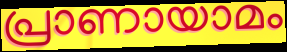
പ്രാണായാമം